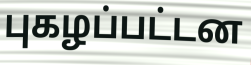
புகழப்பட்டன